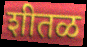
शीतळ